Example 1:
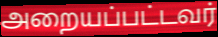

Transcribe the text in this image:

அறையப்பட்டவர்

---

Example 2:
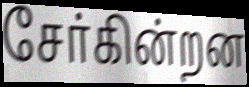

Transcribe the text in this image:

சேர்கின்றன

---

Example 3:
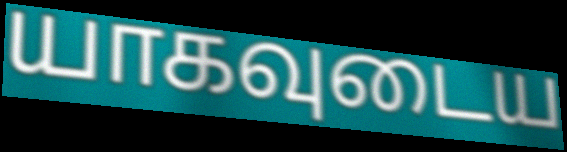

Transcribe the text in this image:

யாகவுடைய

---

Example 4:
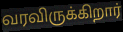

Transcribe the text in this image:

வரவிருக்கிறார்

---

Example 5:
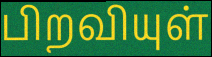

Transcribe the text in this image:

பிறவியுள்